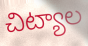
చిట్యాల